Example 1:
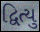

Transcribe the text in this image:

દ્વિત્યુ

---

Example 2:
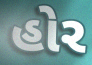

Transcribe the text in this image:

હોર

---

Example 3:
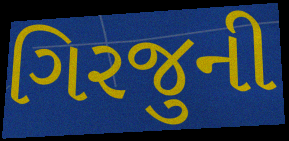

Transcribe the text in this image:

ગિરજુની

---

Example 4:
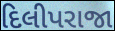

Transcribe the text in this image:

દિલીપરાજા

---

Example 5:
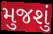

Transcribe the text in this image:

મુજશું